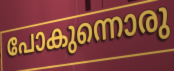
പോകുന്നൊരു